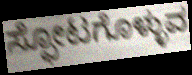
ಸ್ಫೋಟಗೊಳ್ಳುವ